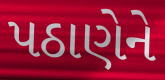
પઠાણેને